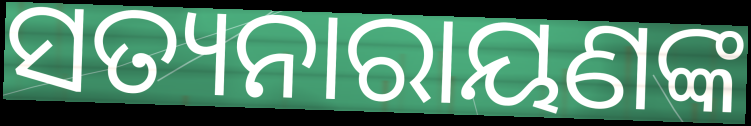
ସତ୍ୟନାରାୟଣଙ୍କ